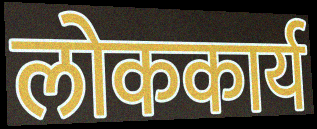
लोककार्य